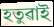
হতুৱাই